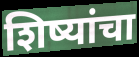
शिष्यांचा